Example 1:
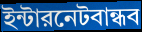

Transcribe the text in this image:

ইন্টারনেটবান্ধব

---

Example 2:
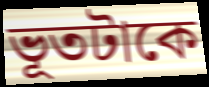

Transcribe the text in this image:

ভূতটাকে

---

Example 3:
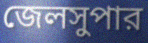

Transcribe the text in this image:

জেলসুপার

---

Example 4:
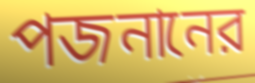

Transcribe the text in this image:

পজনানের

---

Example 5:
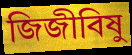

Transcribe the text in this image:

জিজীবিষু